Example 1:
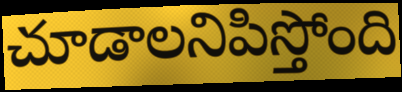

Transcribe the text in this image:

చూడాలనిపిస్తోంది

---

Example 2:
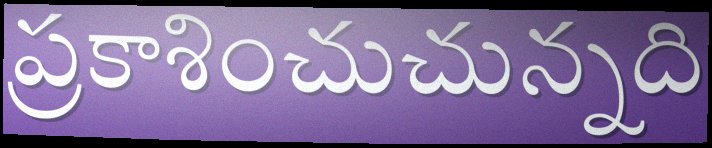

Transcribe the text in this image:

ప్రకాశించుచున్నది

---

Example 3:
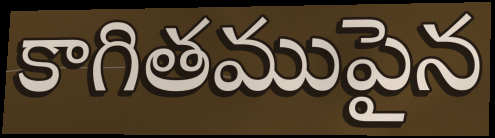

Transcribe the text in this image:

కాగితముపైన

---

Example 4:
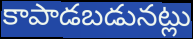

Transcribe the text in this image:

కాపాడబడునట్లు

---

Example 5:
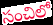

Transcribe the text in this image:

సంచిలో